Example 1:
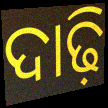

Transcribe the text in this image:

ଦାଢ଼ି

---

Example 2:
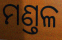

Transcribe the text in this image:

ମଣ୍ତଳ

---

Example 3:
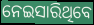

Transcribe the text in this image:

ନେଇସାରିଥିବେ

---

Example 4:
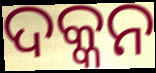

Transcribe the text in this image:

ଦକ୍କନ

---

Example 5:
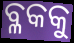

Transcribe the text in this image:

ବ୍ଳକକୁ